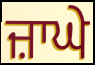
ਜ਼ਾਘੇ